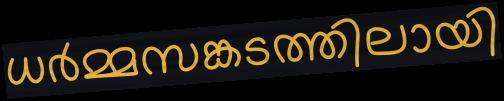
ധർമ്മസങ്കടത്തിലായി